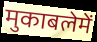
मुकाबलेमें